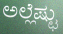
ಅಲ್ಲೆಷ್ಟು